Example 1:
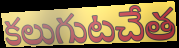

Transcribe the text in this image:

కలుగుటచేత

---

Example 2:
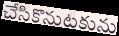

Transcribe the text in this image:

చేసికొనుటకును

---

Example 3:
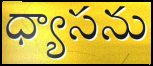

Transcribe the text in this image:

ధ్యాసను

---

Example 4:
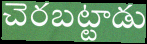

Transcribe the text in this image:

చెరబట్టాడు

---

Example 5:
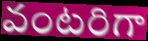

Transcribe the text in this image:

వంటరిగా